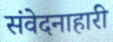
संवेदनाहारी